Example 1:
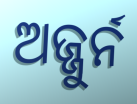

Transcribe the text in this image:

ଅଜ୍ଜୁର୍ନ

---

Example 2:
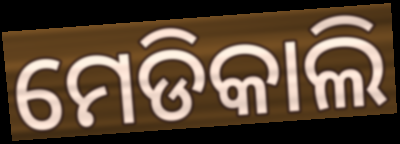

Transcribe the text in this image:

ମେଡିକାଲି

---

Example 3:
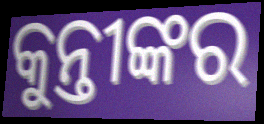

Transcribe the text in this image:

କୁନ୍ତୀଙ୍କର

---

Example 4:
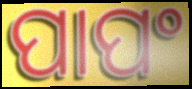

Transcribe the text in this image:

ପାପଂ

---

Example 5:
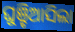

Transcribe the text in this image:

ଘୁଞ୍ଚିଆସିଲା